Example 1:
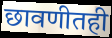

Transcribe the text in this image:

छावणीतही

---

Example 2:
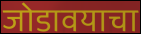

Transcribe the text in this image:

जोडावयाचा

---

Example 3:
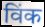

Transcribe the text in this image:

विंक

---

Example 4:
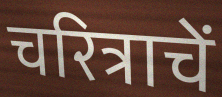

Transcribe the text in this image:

चरित्राचें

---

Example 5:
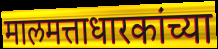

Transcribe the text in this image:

मालमत्ताधारकांच्या